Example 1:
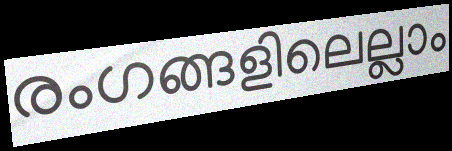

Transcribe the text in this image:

രംഗങ്ങളിലെല്ലാം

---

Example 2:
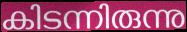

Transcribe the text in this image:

കിടന്നിരുന്നു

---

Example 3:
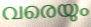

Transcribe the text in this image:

വരെയും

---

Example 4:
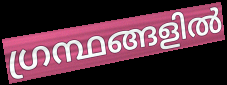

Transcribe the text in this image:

ഗ്രന്ഥങ്ങളിൽ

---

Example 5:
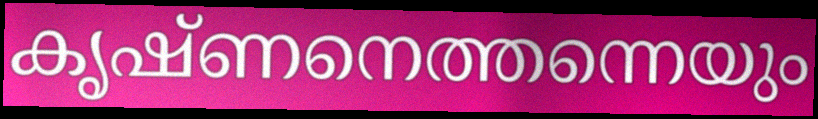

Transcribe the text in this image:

കൃഷ്ണനെത്തന്നെയും